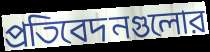
প্রতিবেদনগুলোর